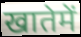
खातेमें